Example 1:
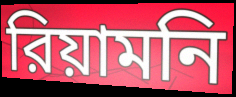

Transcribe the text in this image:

রিয়ামনি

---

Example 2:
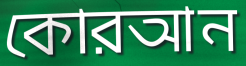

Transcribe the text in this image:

কোরআন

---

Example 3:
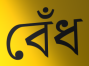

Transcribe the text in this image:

বেঁধ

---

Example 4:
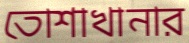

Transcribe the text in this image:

তোশাখানার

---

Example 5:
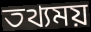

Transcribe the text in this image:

তথ্যময়